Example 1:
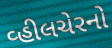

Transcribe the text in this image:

વ્હીલચેરનો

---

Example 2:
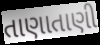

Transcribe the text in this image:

તાણાતાણી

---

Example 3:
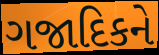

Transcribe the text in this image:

ગજાદિકને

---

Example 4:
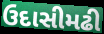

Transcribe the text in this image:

ઉદાસીમઢી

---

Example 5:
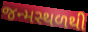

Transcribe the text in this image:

જન્મસ્થળથી